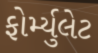
ફોર્મ્યુલેટ